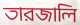
তারজালি